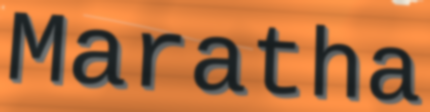
Maratha